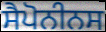
ਸੈਪੋਨੀਨਸ